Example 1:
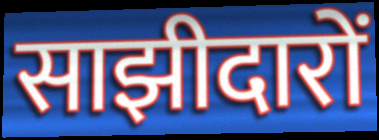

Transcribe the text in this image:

साझीदारों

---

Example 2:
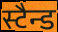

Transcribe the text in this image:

स्टैन्ड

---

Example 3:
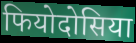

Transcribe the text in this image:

फियोदोसिया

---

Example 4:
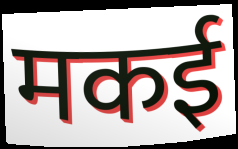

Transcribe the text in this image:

मकई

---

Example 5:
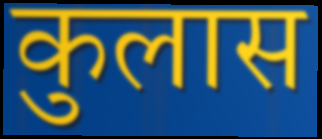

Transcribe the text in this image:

कुलास